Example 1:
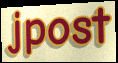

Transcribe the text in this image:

jpost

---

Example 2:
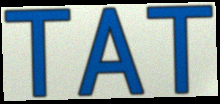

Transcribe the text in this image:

TAT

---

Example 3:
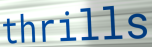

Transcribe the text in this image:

thrills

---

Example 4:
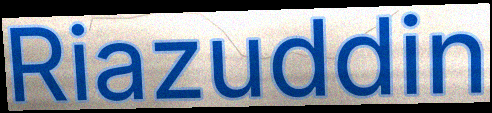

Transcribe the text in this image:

Riazuddin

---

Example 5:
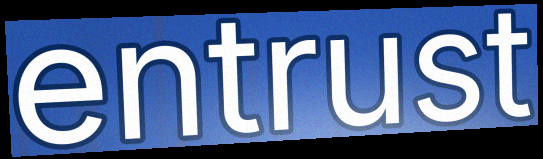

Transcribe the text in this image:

entrust